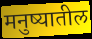
मनुष्यातील